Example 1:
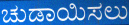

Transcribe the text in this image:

ಚುಡಾಯಿಸಲು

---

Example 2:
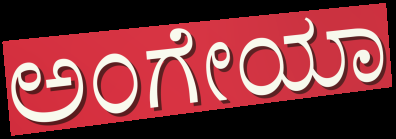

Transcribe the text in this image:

ಅಂಗೇಯಾ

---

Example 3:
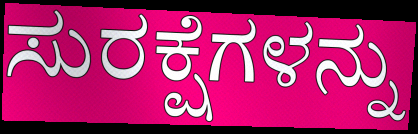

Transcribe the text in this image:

ಸುರಕ್ಷೆಗಳನ್ನು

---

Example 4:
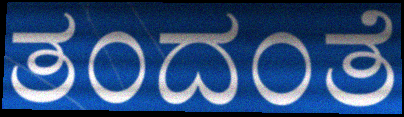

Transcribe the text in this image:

ತಂದಂತೆ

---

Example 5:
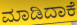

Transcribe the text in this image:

ಮಾಡಿದಾಕೆ